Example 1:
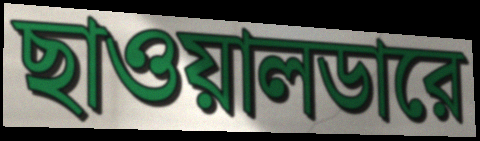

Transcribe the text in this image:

ছাওয়ালডারে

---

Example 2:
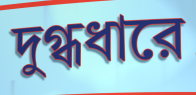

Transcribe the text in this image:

দুগ্ধধারে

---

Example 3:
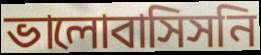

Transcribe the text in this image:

ভালোবাসিসনি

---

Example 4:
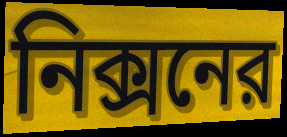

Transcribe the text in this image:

নিক্সনের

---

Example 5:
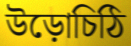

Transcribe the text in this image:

উড়োচিঠি